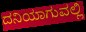
ದನಿಯಾಗುವಲ್ಲಿ